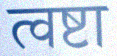
त्वष्टा